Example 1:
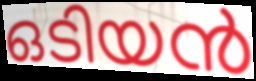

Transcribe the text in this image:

ഒടിയൻ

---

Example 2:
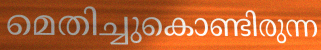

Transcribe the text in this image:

മെതിച്ചുകൊണ്ടിരുന്ന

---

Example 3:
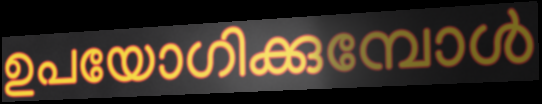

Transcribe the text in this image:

ഉപയോഗിക്കുമ്പോൾ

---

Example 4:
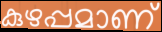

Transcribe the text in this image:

കുഴപ്പമാണ്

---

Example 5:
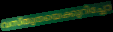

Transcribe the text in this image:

വസ്തുതയെക്കുറിച്ചോ